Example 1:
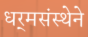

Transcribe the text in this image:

धर्मसंस्थेने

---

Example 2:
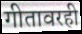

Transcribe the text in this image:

गीतावरही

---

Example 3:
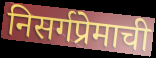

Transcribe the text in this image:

निसर्गप्रेमाची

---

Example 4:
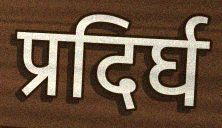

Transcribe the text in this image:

प्रदिर्घ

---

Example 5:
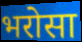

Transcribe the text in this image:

भरोसा